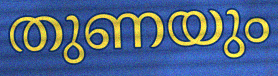
തുണയും